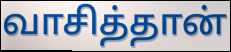
வாசித்தான்